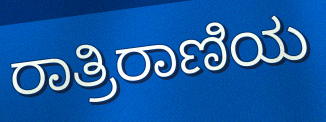
ರಾತ್ರಿರಾಣಿಯ